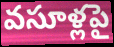
వసూళ్లపై